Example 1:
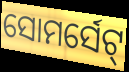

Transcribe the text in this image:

ସୋମର୍ସେଟ୍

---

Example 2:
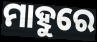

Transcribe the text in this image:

ମାହୁରେ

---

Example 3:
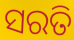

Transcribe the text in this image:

ସରତି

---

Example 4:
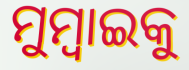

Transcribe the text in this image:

ମୁମ୍ବାଇକୁ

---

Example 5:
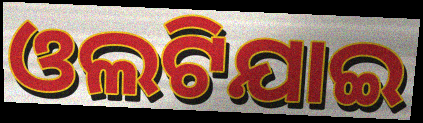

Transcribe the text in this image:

ଓଲଟିଯାଇ